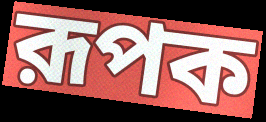
রূপক